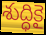
శుద్ధికై